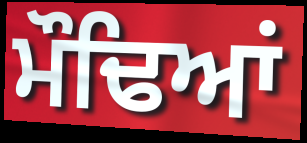
ਮੌਢਿਆਂ